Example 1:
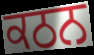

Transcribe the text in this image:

ਕਠਨ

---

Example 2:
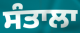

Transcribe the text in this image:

ਸੰਤਾਲਾ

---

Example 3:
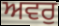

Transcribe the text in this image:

ਅਵਰੁ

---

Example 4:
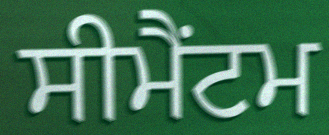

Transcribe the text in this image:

ਸੀਮੈਂਟਮ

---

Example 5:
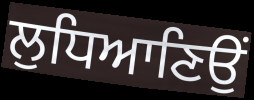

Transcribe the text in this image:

ਲੁਧਿਆਣਿਉਂ